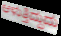
ಆಳುತ್ತಿದ್ದುದು